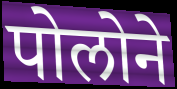
पोलोने